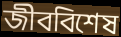
জীববিশেষ